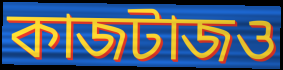
কাজটাজও